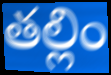
తల్లిం